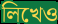
লিখেও